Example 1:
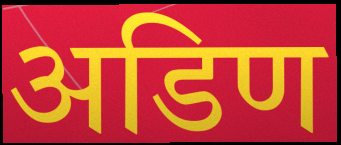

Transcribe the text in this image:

अडिण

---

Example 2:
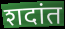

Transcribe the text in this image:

शदांत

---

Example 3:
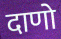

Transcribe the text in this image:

दाणो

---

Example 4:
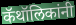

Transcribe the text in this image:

कॅथॉलिकांनी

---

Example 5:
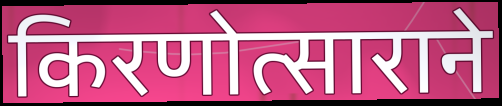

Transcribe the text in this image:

किरणोत्साराने